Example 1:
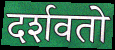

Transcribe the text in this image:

दर्शवतो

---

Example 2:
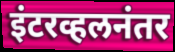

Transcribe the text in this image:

इंटरव्हलनंतर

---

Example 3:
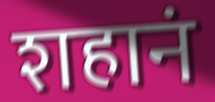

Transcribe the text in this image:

शहानं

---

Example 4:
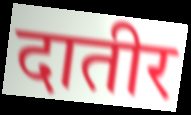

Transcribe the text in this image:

दातीर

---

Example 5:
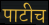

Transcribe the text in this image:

पाटीच